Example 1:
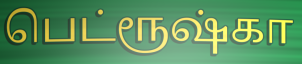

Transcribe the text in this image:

பெட்ரூஷ்கா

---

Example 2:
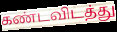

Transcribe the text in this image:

கண்டவிடத்து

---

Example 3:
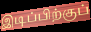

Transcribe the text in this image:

இடிப்பிற்குப்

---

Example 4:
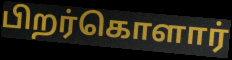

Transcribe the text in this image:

பிறர்கொளார்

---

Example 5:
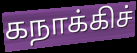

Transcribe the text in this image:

கநாக்கிச்